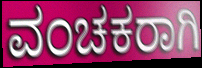
ವಂಚಕರಾಗಿ